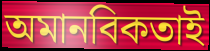
অমানবিকতাই